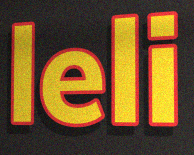
leli